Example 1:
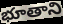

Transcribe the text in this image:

భూతాని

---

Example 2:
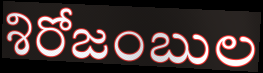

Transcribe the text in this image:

శిరోజంబుల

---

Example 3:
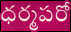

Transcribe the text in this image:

ధర్మపరో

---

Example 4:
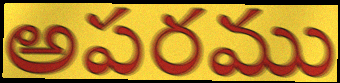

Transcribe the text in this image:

అపరము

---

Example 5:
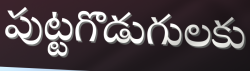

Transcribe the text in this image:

పుట్టగొడుగులకు